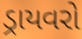
ડ્રાયવરો